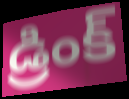
డ్రింక్